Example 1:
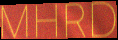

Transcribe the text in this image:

MHRD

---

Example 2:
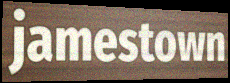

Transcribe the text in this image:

jamestown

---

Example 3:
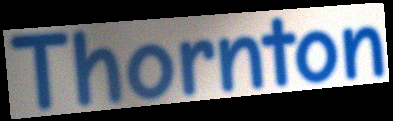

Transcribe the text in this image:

Thornton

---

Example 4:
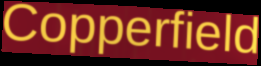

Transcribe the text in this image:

Copperfield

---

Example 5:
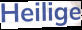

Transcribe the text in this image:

Heilige